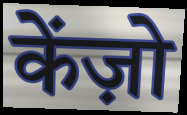
केंज़ो